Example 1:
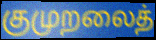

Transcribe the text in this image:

குமுறலைத்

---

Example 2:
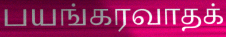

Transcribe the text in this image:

பயங்கரவாதக்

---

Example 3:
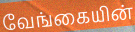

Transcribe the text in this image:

வேங்கையின்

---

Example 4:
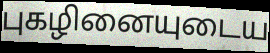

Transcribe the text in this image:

புகழினையுடைய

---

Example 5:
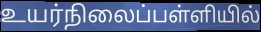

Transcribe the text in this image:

உயர்நிலைப்பள்ளியில்